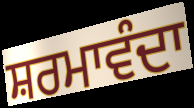
ਸ਼ਰਮਾਵੰਦਾ